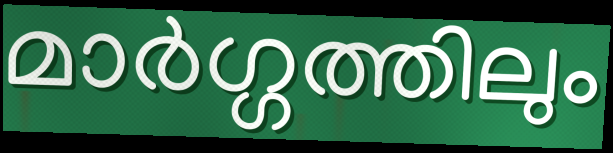
മാർഗ്ഗത്തിലും